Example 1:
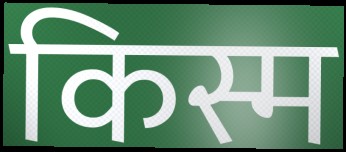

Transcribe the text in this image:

किस्म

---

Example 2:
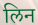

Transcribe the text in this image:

लिन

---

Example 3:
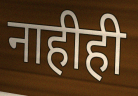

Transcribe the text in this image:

नाहीही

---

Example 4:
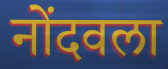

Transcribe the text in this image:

नोंदवला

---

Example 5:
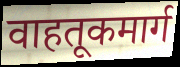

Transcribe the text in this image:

वाहतूकमार्ग